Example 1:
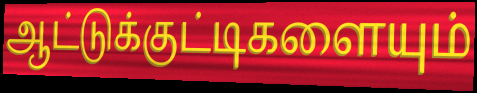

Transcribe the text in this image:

ஆட்டுக்குட்டிகளையும்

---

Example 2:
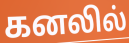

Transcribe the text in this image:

கனலில்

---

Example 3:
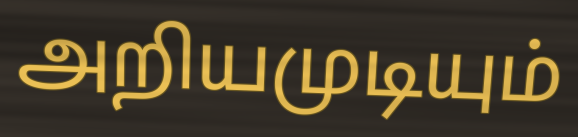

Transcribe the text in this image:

அறியமுடியும்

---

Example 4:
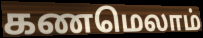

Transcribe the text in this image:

கணமெலாம்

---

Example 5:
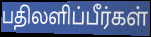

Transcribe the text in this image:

பதிலளிப்பீர்கள்